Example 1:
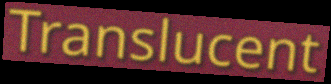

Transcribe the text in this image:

Translucent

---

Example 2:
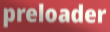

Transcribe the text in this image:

preloader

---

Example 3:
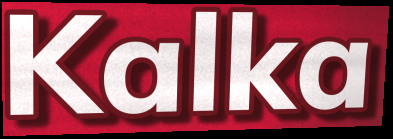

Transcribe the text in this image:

Kalka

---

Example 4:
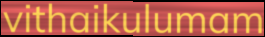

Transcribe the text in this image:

vithaikulumam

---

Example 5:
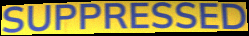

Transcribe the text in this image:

SUPPRESSED